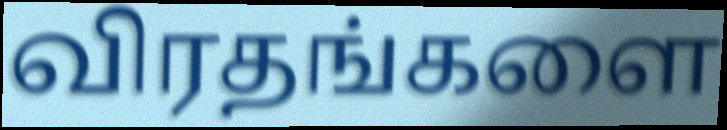
விரதங்களை